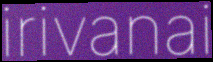
irivanai